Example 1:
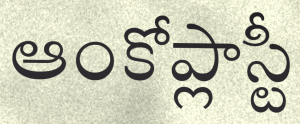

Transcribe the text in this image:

ఆంకోప్లాస్టీ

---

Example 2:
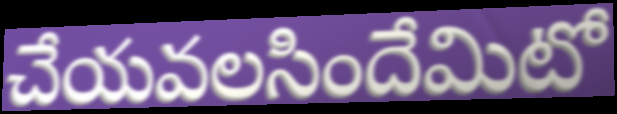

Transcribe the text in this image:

చేయవలసిందేమిటో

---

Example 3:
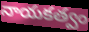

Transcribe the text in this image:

నాయకత్వం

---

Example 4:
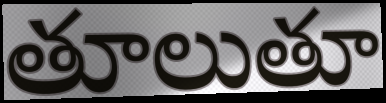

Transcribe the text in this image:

తూలుతూ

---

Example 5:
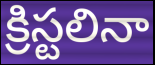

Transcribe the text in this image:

క్రిస్టలినా